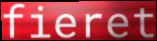
fieret